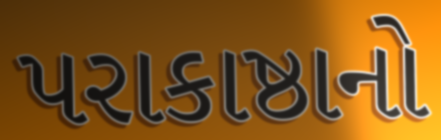
પરાકાષ્ઠાનો